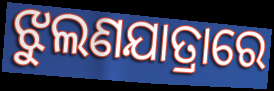
ଝୁଲଣଯାତ୍ରାରେ